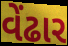
વેંઢાર